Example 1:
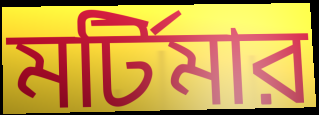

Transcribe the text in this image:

মর্টিমার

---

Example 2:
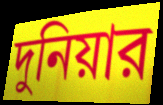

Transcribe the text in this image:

দুনিয়ার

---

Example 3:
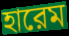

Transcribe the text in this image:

হারেম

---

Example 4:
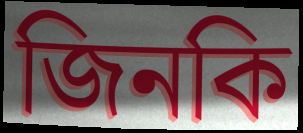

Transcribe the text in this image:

জিনকি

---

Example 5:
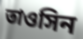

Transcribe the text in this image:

তাওসিন